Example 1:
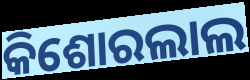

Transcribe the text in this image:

କିଶୋରଲାଲ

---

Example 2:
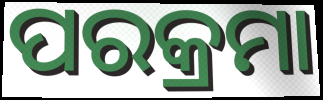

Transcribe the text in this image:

ପରକ୍ରମା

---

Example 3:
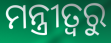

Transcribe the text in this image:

ମନ୍ତ୍ରୀତ୍ୱରୁ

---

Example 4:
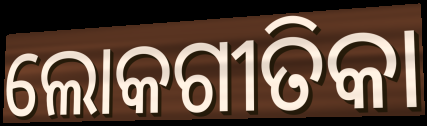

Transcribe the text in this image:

ଲୋକଗୀତିକା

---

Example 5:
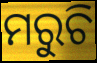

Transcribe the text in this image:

ମରୁଚି